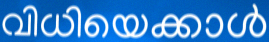
വിധിയെക്കാൾ